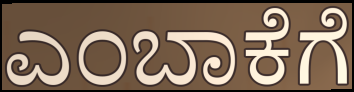
ಎಂಬಾಕೆಗೆ